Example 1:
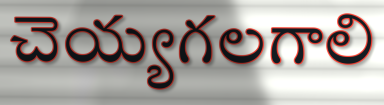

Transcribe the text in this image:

చెయ్యగలగాలి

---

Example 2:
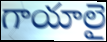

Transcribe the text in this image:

గాయాలై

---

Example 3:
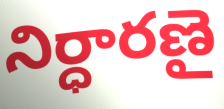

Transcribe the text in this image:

నిర్ధారణై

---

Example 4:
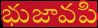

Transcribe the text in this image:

భుజావపి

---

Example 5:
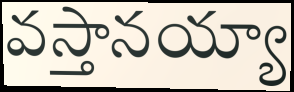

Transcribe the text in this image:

వస్తానయ్యా